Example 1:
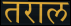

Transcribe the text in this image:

तराल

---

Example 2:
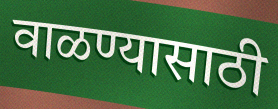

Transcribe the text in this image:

वाळण्यासाठी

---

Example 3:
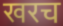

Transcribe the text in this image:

खरच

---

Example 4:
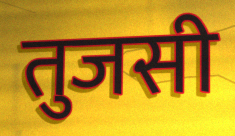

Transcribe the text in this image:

तुजसी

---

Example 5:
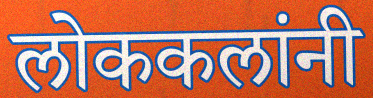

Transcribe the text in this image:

लोककलांनी